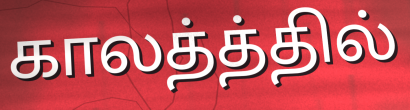
காலத்த்தில்